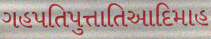
ગહપતિપુત્તાતિઆદિમાહ